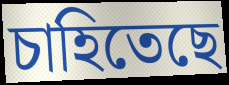
চাহিতেছে